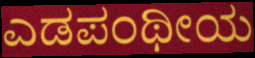
ಎಡಪಂಥೀಯ